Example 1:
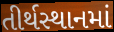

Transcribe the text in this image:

તીર્થસ્થાનમાં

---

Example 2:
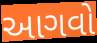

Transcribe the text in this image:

આગવો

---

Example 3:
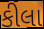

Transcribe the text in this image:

કીલા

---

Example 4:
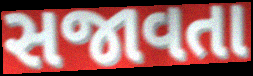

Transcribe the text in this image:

સજાવતા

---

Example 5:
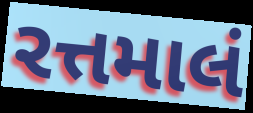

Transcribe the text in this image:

રત્તમાલં